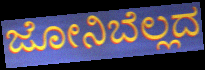
ಜೋನಿಬೆಲ್ಲದ